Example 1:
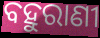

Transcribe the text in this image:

ବହୁରାଣୀ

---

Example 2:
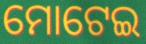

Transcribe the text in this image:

ମୋଟେଇ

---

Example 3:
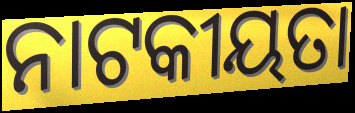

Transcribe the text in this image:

ନାଟକୀୟତା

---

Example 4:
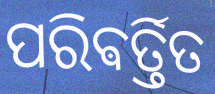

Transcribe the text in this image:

ପରିଵର୍ତ୍ତିତ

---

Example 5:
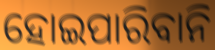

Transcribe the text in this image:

ହୋଇପାରିବାନି